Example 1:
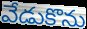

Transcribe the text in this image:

వేడుకొను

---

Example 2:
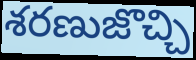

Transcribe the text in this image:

శరణుజొచ్చి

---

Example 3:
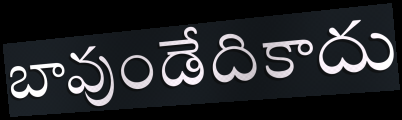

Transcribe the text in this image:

బావుండేదికాదు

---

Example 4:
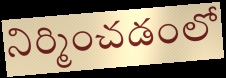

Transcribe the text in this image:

నిర్మించడంలో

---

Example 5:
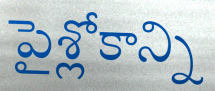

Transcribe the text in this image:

పైశ్లోకాన్ని